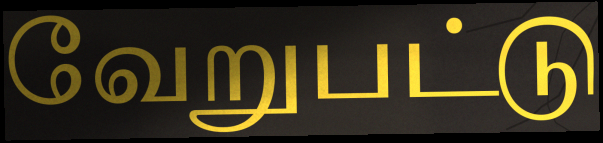
வேறுபட்டு